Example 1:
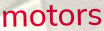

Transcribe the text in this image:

motors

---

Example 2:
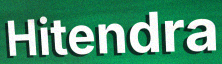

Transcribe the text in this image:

Hitendra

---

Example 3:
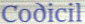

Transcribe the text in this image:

Codicil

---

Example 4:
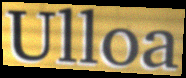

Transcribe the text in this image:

Ulloa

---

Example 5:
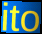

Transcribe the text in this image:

ito